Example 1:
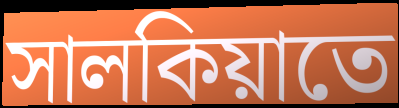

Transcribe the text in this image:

সালকিয়াতে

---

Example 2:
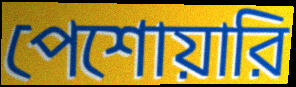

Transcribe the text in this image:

পেশোয়ারি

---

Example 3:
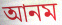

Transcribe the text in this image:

আনম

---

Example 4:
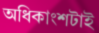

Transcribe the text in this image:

অধিকাংশটাই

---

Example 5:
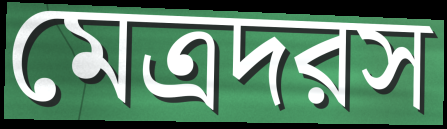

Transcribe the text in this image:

মেত্রদরস